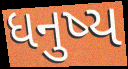
ધનુષ્ય